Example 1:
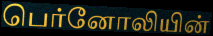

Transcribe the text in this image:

பெர்னோலியின்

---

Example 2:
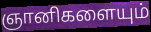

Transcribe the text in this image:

ஞானிகளையும்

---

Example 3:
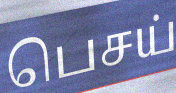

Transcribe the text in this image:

பெசய்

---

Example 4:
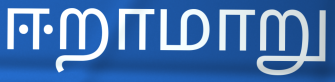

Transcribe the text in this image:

ஈறாமாறு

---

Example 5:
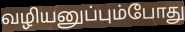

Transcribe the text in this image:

வழியனுப்பும்போது